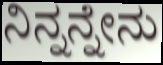
ನಿನ್ನನ್ನೇನು